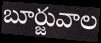
బూర్జువాల